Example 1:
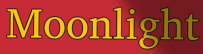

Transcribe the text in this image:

Moonlight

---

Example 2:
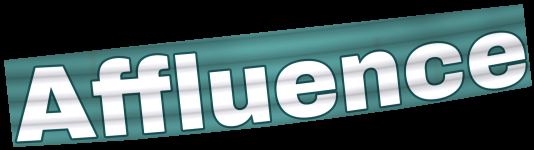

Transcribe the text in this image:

Affluence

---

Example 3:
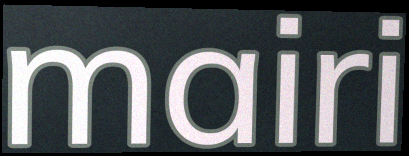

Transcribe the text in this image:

mairi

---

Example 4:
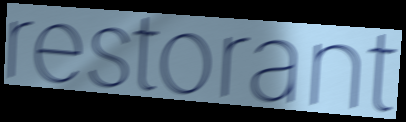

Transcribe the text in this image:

restorant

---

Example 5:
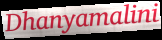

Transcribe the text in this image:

Dhanyamalini